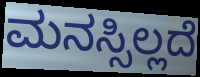
ಮನಸ್ಸಿಲ್ಲದೆ